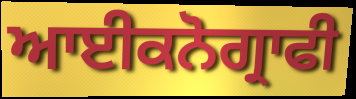
ਆਈਕਨੋਗ੍ਰਾਫੀ